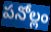
పనోల్లం